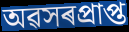
অৱসৰপ্ৰাপ্ত